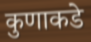
कुणाकडे